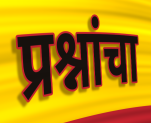
प्रश्नांचा